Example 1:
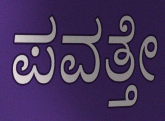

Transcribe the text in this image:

ಪವತ್ತೇ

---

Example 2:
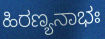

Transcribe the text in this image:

ಹಿರಣ್ಯನಾಭಃ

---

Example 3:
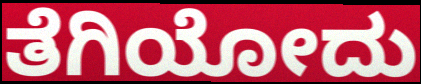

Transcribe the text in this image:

ತೆಗಿಯೋದು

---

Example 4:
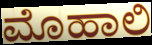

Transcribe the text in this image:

ಮೊಹಾಲಿ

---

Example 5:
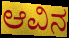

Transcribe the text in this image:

ಆವಿನ